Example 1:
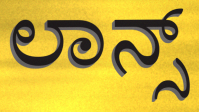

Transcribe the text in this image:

ಲಾನ್ಸ್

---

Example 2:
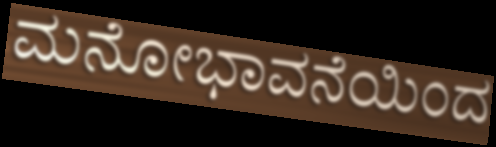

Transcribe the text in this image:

ಮನೋಭಾವನೆಯಿಂದ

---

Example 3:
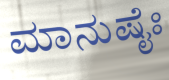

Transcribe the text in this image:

ಮಾನುಷೈಃ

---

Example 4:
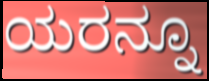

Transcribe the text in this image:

ಯರನ್ನೂ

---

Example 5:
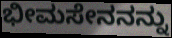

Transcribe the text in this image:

ಭೀಮಸೇನನನ್ನು